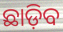
ଛାଡ଼ିବ